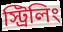
স্ট্রিলিং